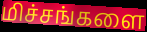
மிச்சங்களை